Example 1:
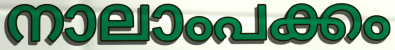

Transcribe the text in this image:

നാലാംപക്കം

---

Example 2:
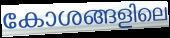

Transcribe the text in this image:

കോശങ്ങളിലെ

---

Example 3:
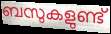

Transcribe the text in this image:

ബസുകളുണ്ട്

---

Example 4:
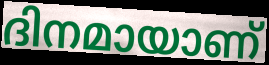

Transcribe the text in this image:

ദിനമായാണ്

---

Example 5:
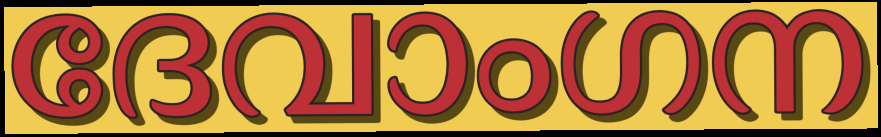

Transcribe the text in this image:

ദേവാംഗന